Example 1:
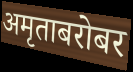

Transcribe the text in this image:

अमृताबरोबर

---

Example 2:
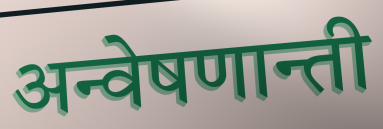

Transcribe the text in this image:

अन्वेषणान्ती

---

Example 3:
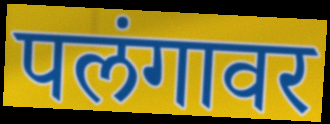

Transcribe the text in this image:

पलंगावर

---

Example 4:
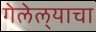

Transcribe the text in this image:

गेलेल्याचा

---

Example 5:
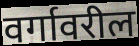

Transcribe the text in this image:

वर्गावरील